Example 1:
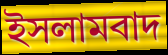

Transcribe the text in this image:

ইসলামবাদ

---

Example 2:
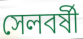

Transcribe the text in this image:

সেলবর্ষী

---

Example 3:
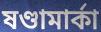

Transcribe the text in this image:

ষণ্ডামার্কা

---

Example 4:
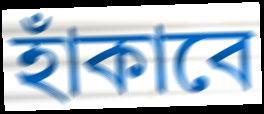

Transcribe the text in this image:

হাঁকাবে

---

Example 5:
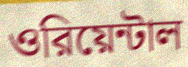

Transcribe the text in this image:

ওরিয়েন্টাল